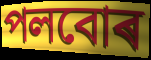
পলবোৰ